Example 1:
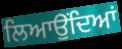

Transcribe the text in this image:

ਲਿਆਉਂਦਿਆਂ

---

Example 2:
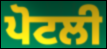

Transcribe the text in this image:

ਪੋਟਲੀ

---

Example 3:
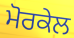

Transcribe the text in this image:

ਮੋਰਕੇਲ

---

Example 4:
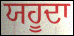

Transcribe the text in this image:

ਯਹੂਦਾ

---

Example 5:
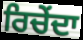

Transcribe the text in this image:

ਰਿਚੇਂਦਾ